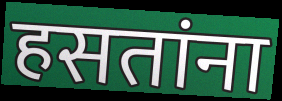
हसतांना